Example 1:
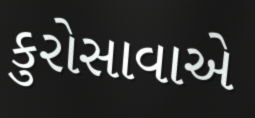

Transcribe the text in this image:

કુરોસાવાએ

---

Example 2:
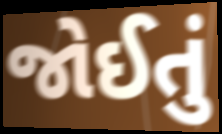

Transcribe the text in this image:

જોઈતું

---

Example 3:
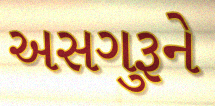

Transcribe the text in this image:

અસગુરૂને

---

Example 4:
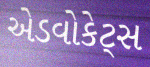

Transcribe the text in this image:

એડવોકેટ્સ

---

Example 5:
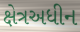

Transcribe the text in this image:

ક્ષેત્રઅધીન